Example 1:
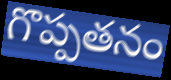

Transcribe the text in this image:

గొప్పతనం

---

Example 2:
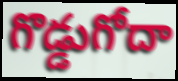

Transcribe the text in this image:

గొడ్డుగోదా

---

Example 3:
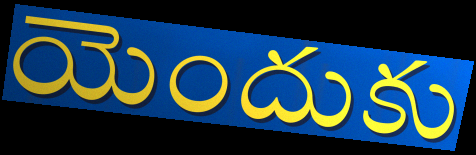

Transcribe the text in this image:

యెందుకు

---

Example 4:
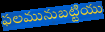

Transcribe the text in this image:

ఫలమునుబట్టియు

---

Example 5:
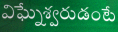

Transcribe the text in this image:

విఘ్నేశ్వరుడంటే